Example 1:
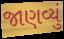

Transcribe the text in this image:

જાણવ્યું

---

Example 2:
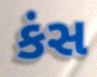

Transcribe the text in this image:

કંસ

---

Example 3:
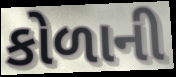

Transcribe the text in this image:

કોળાની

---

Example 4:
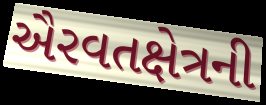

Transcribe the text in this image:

ઐરવતક્ષેત્રની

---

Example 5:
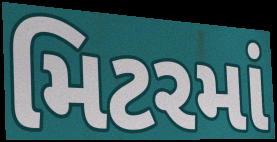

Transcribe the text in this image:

મિટરમાં